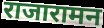
राजारामन